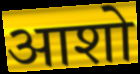
आशो